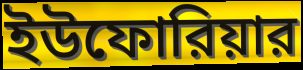
ইউফোরিয়ার